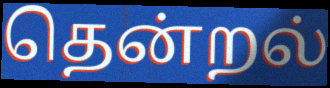
தென்றல்